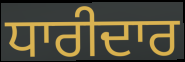
ਧਾਰੀਦਾਰ